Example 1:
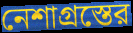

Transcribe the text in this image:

নেশাগ্রস্তের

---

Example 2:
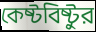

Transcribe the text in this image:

কেষ্টবিষ্টুর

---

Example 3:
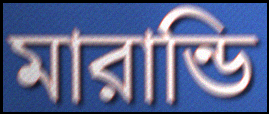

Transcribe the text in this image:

মারান্ডি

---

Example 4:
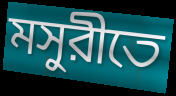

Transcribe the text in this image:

মসুরীতে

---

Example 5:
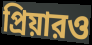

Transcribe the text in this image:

প্রিয়ারও